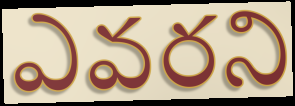
ఎవరని